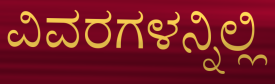
ವಿವರಗಳನ್ನಿಲ್ಲಿ